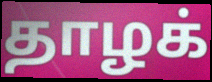
தாழக்